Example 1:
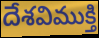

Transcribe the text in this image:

దేశవిముక్తి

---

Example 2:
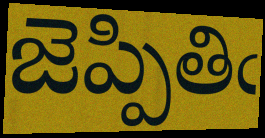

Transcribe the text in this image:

జెప్పితిఁ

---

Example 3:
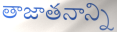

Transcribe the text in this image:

తాజాతనాన్ని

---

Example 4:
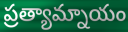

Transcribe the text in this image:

ప్రత్యామ్నాయం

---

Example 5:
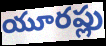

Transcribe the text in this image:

యూరప్లు